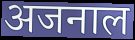
अजनाल